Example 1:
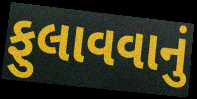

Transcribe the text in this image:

ફુલાવવાનું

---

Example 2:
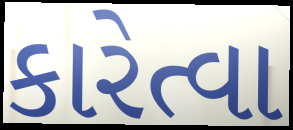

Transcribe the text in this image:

કારેત્વા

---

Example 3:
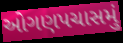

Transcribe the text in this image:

ઓગણપચાસમું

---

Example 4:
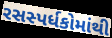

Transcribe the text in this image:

રસસ્પર્ધકોમાંથી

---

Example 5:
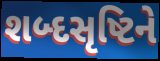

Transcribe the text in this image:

શબ્દસૃષ્ટિને